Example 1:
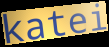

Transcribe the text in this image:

katei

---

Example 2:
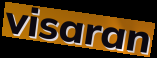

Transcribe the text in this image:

visaran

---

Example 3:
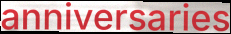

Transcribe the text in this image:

anniversaries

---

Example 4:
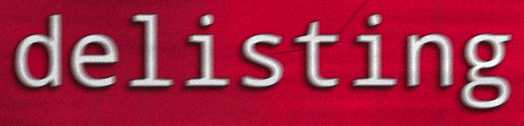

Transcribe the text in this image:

delisting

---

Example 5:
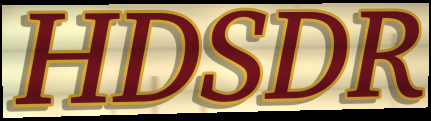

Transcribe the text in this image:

HDSDR